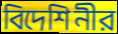
বিদেশিনীর